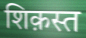
शिक़स्त